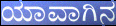
ಯಾವಾಗಿನ